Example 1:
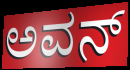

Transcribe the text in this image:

ಅವನ್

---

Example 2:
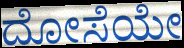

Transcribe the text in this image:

ದೋಸೆಯೇ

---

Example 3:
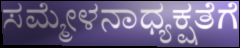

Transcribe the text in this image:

ಸಮ್ಮೇಳನಾಧ್ಯಕ್ಷತೆಗೆ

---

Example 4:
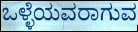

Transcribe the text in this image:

ಒಳ್ಳೆಯವರಾಗುವ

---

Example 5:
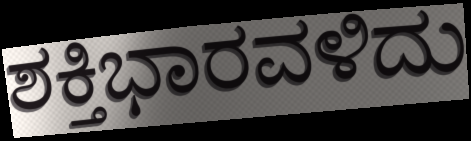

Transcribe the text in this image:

ಶಕ್ತಿಭಾರವಳಿದು